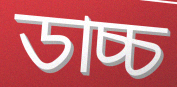
ডাচ্চ